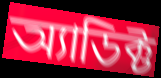
অ্যাডিক্ট